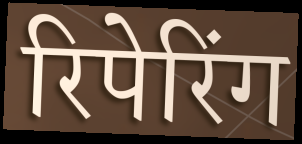
रिपेरिंग